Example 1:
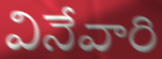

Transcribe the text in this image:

వినేవారి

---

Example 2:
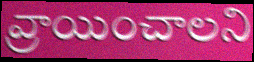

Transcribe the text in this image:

వ్రాయించాలని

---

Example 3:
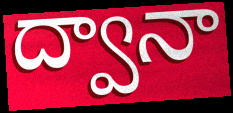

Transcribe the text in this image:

ద్వానా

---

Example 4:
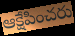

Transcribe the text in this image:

ఆక్షేపించరు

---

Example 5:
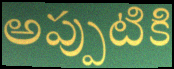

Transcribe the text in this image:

అప్పుటికి